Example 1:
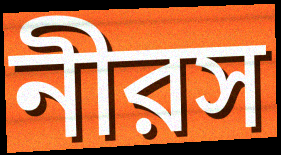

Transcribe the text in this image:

নীরস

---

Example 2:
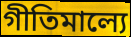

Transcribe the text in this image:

গীতিমাল্যে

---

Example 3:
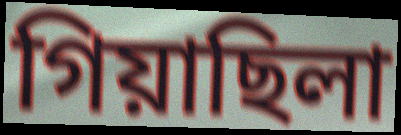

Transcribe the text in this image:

গিয়াছিলা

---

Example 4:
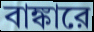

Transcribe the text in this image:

বাঙ্কারে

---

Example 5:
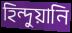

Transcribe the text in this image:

হিন্দুয়ানি